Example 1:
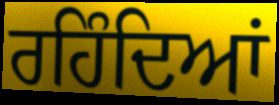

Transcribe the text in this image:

ਰਹਿੰਦਿਆਂ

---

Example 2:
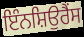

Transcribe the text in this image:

ਇੰਨਸ਼ਿਉਰੈਂਸ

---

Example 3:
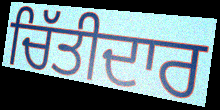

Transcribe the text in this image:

ਚਿੱਤੀਦਾਰ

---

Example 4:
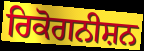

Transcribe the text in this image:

ਰਿਕੋਗਨੀਸ਼ਨ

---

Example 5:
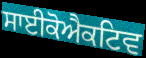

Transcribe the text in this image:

ਸਾਈਕੋਐਕਟਿਵ